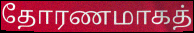
தோரணமாகத்